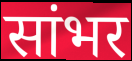
सांभर